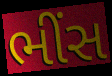
ભીંસ